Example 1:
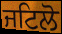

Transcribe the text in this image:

ਜਟਿਲੋ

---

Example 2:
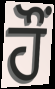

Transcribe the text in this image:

ਹੌਂ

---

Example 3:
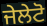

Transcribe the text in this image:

ਜੇਲੇਟੋ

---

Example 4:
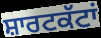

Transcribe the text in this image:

ਸ਼ਾਰਟਕੱਟਾਂ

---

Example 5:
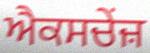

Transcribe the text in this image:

ਐਕਸਚੇਂਜ਼